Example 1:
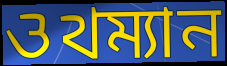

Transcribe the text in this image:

ওথম্যান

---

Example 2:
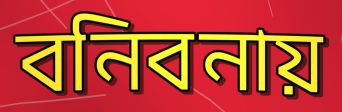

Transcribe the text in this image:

বনিবনায়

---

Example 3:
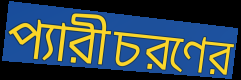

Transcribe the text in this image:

প্যারীচরণের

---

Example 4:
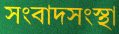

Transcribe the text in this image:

সংবাদসংস্থা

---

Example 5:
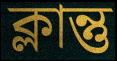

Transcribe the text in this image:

ক্লান্তু